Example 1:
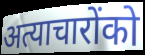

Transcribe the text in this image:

अत्याचारोंको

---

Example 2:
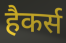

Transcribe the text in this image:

हैकर्स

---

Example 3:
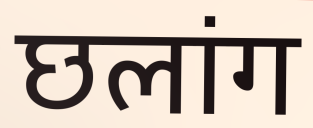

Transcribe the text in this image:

छलांग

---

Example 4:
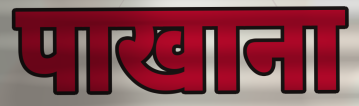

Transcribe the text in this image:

पाखाना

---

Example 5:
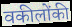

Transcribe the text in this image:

वकीलोंकी